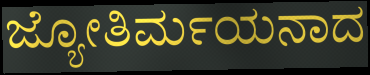
ಜ್ಯೋತಿರ್ಮಯನಾದ